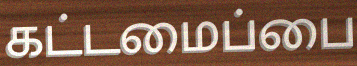
கட்டமைப்பை